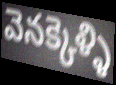
వెనక్కెళ్ళి